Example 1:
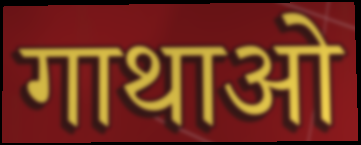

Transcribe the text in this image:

गाथाओ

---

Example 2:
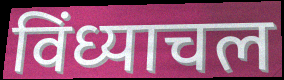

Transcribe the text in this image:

विंध्याचल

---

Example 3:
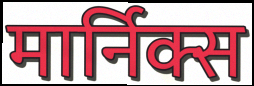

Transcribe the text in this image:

मार्निक्स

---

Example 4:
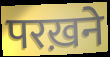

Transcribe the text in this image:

परख़ने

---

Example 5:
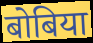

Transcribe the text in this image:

बोबिया